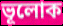
ভূলোক